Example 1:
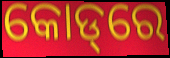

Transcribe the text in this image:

କୋଡ୍‌ରେ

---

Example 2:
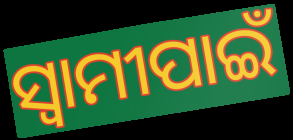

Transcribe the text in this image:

ସ୍ୱାମୀପାଇଁ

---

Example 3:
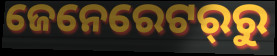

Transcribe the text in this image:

ଜେନେରେଟର୍‌ରୁ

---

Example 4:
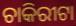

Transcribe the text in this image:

ଚାକିରୀଟା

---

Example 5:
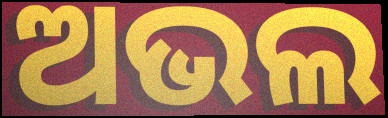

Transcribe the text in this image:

ଅଭଲ